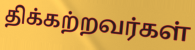
திக்கற்றவர்கள்